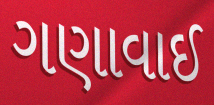
ગણાવાઈ